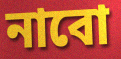
নাবো